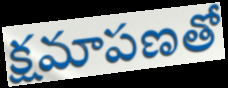
క్షమాపణతో